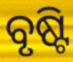
ବୃଷ୍ଟି